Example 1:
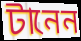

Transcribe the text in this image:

টানেন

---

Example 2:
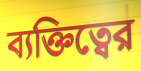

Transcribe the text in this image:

ব্যক্তিত্বের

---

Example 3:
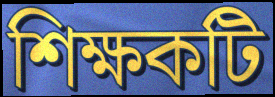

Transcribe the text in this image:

শিক্ষকটি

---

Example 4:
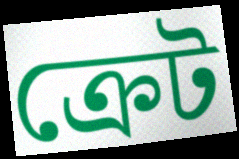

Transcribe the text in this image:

ক্রেট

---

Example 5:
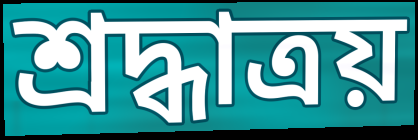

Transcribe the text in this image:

শ্রদ্ধাত্রয়